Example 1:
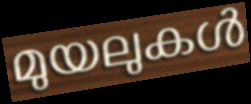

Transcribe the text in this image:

മുയലുകൾ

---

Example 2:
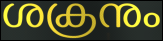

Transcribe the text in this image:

ശക്രനും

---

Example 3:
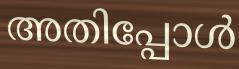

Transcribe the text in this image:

അതിപ്പോൾ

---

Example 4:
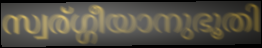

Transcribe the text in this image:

സ്വര്ഗ്ഗീയാനുഭൂതി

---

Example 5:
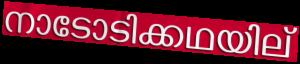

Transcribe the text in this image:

നാടോടിക്കഥയില്